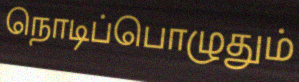
நொடிப்பொழுதும்